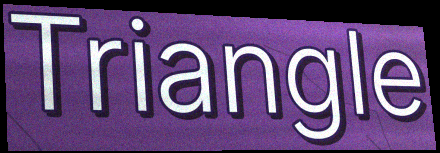
Triangle